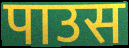
पाउस